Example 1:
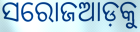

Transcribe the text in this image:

ସରୋଜଆଡ଼କୁ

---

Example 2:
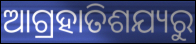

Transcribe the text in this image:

ଆଗ୍ରହାତିଶଯ୍ୟରୁ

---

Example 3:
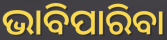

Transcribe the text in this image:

ଭାବିପାରିବା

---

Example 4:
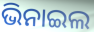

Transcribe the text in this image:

ଭିନାଇଲ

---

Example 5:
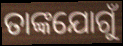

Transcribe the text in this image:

ତାଙ୍କଯୋଗୁଁ